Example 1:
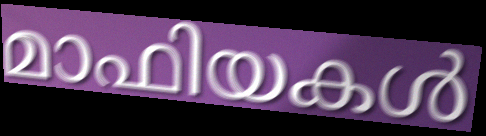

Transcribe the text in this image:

മാഫിയകൾ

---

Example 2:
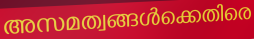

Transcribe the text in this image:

അസമത്വങ്ങൾക്കെതിരെ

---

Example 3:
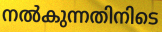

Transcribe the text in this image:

നൽകുന്നതിനിടെ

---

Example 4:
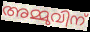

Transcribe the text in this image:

അമ്മുവിന്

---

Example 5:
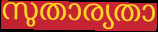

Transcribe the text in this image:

സുതാര്യതാ